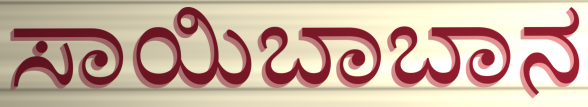
ಸಾಯಿಬಾಬಾನ